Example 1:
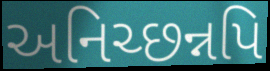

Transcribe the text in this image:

અનિચ્છન્નપિ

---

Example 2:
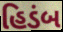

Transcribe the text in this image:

હિડંબ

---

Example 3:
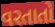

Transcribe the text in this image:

વરતાતો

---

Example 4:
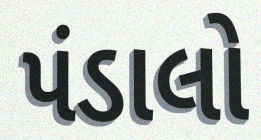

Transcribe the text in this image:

પંડાલો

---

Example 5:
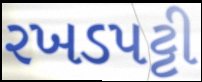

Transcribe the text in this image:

રખડપટ્ટી